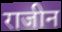
राजीन